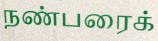
நண்பரைக்